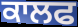
ਕਾਲਫ